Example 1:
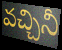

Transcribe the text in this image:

వచ్చినీ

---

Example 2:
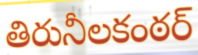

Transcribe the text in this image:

తిరునీలకంఠర్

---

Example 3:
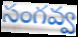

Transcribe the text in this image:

సంగవ్వ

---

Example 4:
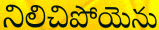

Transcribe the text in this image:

నిలిచిపోయెను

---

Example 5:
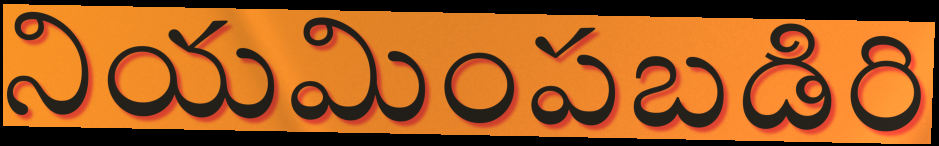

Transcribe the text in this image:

నియమింపబడిరి